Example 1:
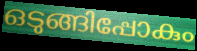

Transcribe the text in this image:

ഒടുങ്ങിപ്പോകും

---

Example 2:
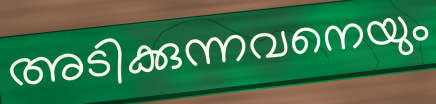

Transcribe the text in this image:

അടിക്കുന്നവനെയും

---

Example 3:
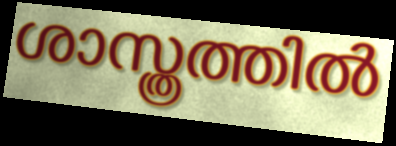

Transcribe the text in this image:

ശാസ്ത്രത്തിൽ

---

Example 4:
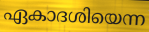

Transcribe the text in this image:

ഏകാദശിയെന്ന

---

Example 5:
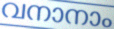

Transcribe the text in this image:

വനാനാം